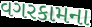
વગરકામના